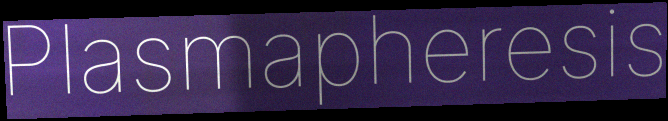
Plasmapheresis